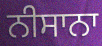
ਨੀਸਾਨਾ